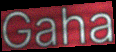
Gaha